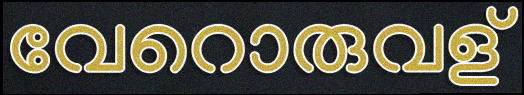
വേറൊരുവള്